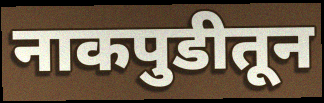
नाकपुडीतून